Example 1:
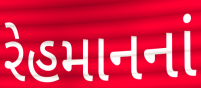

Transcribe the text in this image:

રેહમાનનાં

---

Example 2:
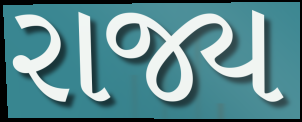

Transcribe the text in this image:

રાજ્ય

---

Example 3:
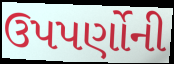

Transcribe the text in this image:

ઉપપર્ણોની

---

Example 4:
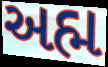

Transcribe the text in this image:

અહ્મ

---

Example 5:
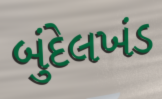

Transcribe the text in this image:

બુંદેલખંડ